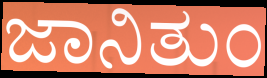
ಜಾನಿತುಂ